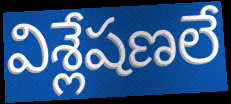
విశ్లేషణలే